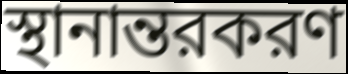
স্থানান্তরকরণ